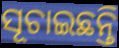
ସୂଚାଇଛନ୍ତି